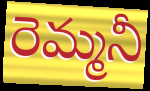
రెమ్మనీ